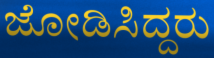
ಜೋಡಿಸಿದ್ದರು